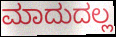
ಮಾದುದಲ್ಲ